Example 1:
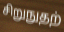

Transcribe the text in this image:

சிறுநுதற்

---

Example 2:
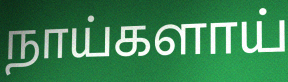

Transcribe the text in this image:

நாய்களாய்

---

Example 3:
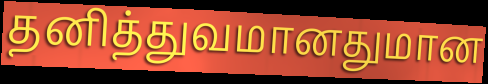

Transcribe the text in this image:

தனித்துவமானதுமான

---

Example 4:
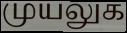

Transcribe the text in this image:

முயலுக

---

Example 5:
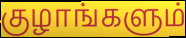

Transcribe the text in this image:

குழாங்களும்